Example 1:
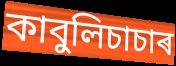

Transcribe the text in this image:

কাবুলিচাচাৰ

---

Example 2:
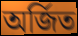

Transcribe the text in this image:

অৰ্জিত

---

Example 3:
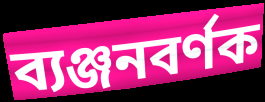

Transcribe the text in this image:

ব্যঞ্জনবৰ্ণক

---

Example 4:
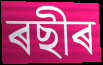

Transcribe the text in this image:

ৰছীৰ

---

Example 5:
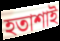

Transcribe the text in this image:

হতাশাই